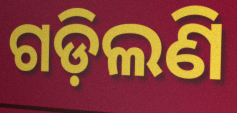
ଗଡ଼ିଲଣି